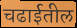
चढाईतील